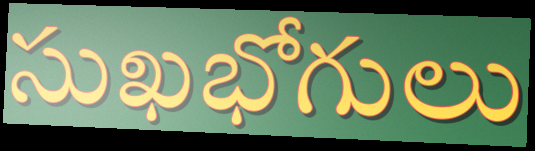
సుఖభోగులు